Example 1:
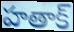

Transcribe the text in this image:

హతాక్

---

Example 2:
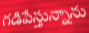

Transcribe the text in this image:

గడిపేస్తున్నాను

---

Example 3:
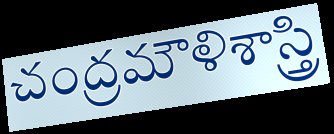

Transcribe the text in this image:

చంద్రమౌళిశాస్త్రి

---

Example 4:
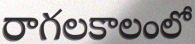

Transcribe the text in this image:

రాగలకాలంలో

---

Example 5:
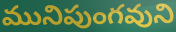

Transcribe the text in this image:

మునిపుంగవుని